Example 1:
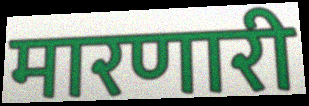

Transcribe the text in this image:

मारणारी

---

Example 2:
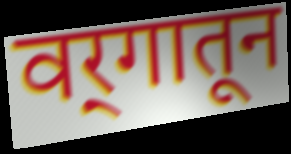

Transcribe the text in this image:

वर्गातून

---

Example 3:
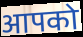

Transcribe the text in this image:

आपको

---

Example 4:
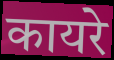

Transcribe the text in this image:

कायरे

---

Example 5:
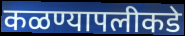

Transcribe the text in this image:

कळण्यापलीकडे